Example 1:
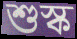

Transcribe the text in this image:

শুস্ক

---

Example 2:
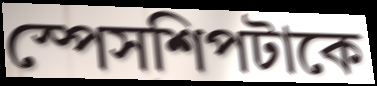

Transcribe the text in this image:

স্পেসশিপটাকে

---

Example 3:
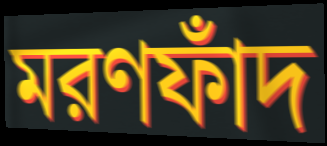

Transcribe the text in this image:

মরণফাঁদ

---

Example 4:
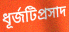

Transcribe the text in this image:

ধূর্জটিপ্রসাদ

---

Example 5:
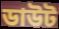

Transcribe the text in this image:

ডাউট